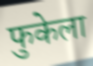
फुकेला